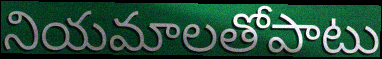
నియమాలతోపాటు